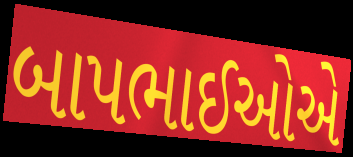
બાપભાઈઓએ